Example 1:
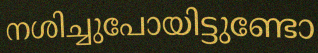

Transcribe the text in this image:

നശിച്ചുപോയിട്ടുണ്ടോ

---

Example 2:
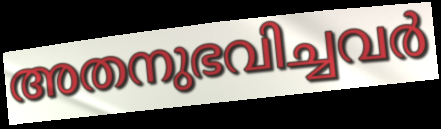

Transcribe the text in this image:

അതനുഭവിച്ചവർ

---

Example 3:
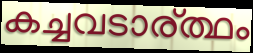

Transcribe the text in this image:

കച്ചവടാര്ത്ഥം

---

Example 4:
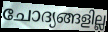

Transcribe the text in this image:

ചോദ്യങ്ങളില്ല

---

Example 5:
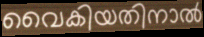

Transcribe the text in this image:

വൈകിയതിനാൽ